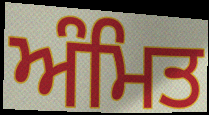
ਅੰਮਿਤ